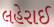
લહેરાઈ